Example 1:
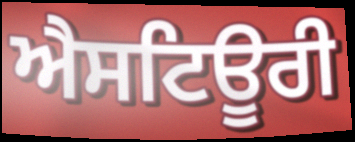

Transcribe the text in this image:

ਐਸਟਿਊਰੀ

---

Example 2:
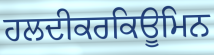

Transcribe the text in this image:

ਹਲਦੀਕਰਕਿਊਮਿਨ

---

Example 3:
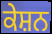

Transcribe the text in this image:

ਕੇਸ਼ਨ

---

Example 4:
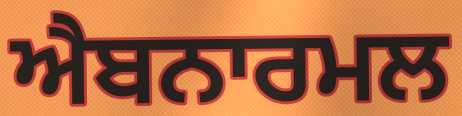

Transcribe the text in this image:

ਐਬਨਾਰਮਲ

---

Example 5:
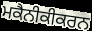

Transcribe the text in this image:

ਮਕੈਨੀਕੀਕਰਨ